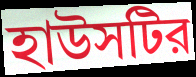
হাউসটির